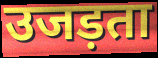
उजड़ता